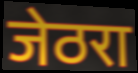
जेठरा